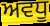
ਅਵਧੂ